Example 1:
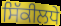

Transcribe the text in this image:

ਸਿੱਕੀਲਧੇ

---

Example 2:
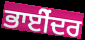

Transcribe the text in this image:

ਭਾਈੇਂਦਰ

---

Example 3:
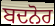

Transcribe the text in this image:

ਬਦਨੋਰ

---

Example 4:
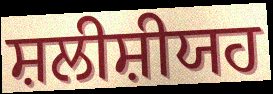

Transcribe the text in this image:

ਸ਼ਲੀਸ਼ੀਯਹ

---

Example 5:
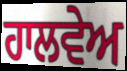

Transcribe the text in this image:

ਹਾਲਵੇਅ